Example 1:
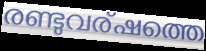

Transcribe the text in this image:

രണ്ടുവര്ഷത്തെ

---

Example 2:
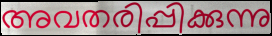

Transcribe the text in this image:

അവതരിപ്പിക്കുന്നു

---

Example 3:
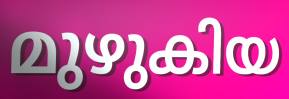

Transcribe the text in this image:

മുഴുകിയ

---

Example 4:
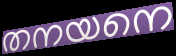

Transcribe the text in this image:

തനയനെ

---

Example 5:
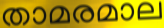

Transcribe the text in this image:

താമരമാല